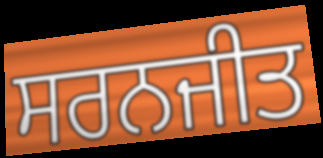
ਸਰਨਜੀਤ